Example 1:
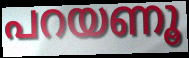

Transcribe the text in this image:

പറയണൂ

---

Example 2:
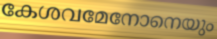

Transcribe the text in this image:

കേശവമേനോനെയും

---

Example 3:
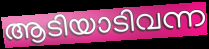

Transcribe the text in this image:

ആടിയാടിവന്ന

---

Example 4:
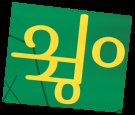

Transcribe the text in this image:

ച്ചും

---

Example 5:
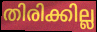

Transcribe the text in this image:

തിരിക്കില്ല